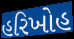
હરિખોહ